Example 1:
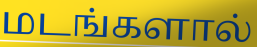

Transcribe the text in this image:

மடங்களால்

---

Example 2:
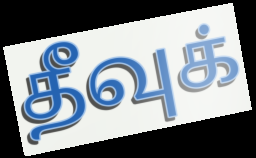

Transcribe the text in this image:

தீவுக்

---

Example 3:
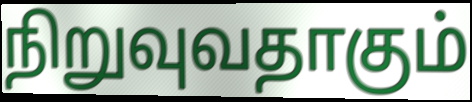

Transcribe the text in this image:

நிறுவுவதாகும்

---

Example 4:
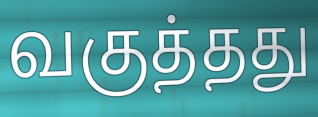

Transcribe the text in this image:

வகுத்தது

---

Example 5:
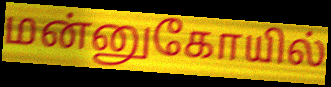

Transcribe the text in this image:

மன்னுகோயில்